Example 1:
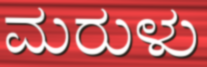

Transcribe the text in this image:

ಮರುಳು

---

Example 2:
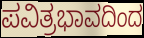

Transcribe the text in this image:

ಪವಿತ್ರಭಾವದಿಂದ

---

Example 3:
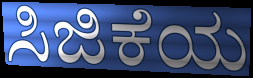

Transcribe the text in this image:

ಸಿಜಿಕೆಯ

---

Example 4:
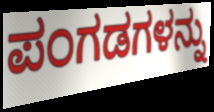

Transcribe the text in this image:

ಪಂಗಡಗಳನ್ನು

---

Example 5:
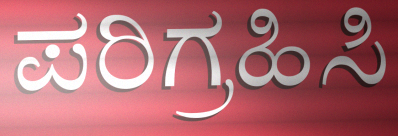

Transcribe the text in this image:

ಪರಿಗ್ರಹಿಸಿ